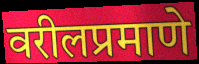
वरीलप्रमाणे